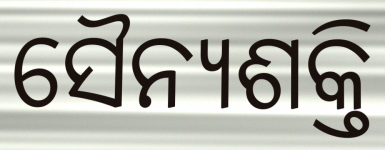
ସୈନ୍ୟଶକ୍ତି